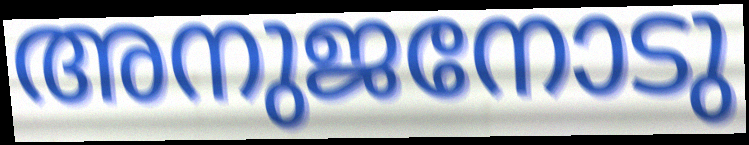
അനുജനോടു